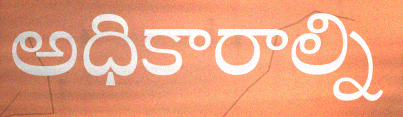
అధికారాల్ని